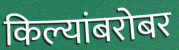
किल्यांबरोबर